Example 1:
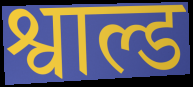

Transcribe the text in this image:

श्वाल्ड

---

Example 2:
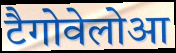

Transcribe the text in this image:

टैगोवेलोआ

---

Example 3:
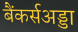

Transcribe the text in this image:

बैंकर्सअड्डा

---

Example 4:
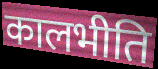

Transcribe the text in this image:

कालभीति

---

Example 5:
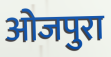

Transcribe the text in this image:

ओजपुरा